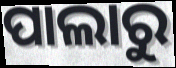
ପାଲାରୁ